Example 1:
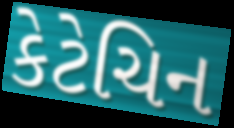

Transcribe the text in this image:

કેટેચિન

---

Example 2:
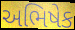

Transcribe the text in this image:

અભિષેક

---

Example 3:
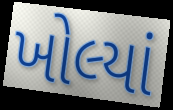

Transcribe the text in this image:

ખોલ્યાં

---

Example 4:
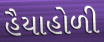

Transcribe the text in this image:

હૈયાહોળી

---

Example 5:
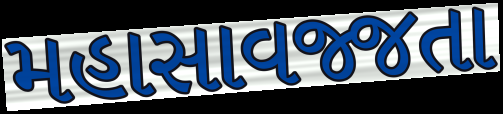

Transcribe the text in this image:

મહાસાવજ્જતા